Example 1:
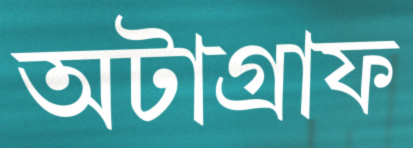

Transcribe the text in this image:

অটাগ্রাফ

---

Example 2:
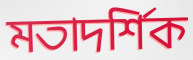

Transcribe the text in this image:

মতাদর্শিক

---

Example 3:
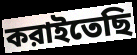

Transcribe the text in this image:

করাইতেছি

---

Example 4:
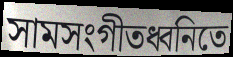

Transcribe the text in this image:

সামসংগীতধ্বনিতে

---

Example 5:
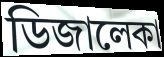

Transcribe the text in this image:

ডিজালেকা